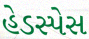
હેડસ્પેસ